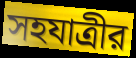
সহযাত্রীর